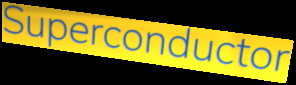
Superconductor